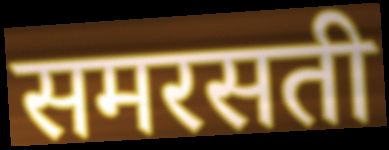
समरसती